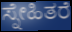
ಸ್ನೇಹಿತರೆ